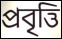
প্ৰবৃত্তি